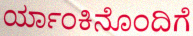
ರ್ಯಾಂಕಿನೊಂದಿಗೆ